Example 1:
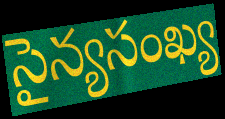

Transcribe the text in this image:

సైన్యసంఖ్య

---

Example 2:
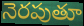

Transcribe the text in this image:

నెరపుతూ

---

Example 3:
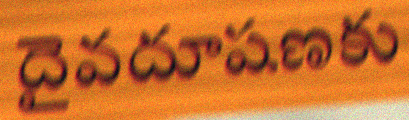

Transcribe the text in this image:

దైవదూషణకు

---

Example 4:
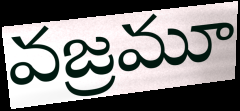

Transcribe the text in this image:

వజ్రమూ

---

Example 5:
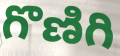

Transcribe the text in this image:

గొణిగి